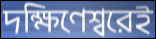
দক্ষিণেশ্বরেই